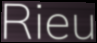
Rieu